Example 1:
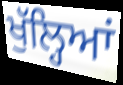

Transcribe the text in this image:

ਖੁੱਲ੍ਹਿਆਂ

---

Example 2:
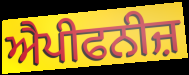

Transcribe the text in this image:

ਐਪੀਫਨੀਜ਼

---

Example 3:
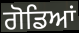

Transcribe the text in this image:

ਗੋਡਿਆਂ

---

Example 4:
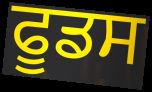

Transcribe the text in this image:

ਫੂਡਸ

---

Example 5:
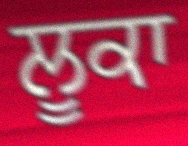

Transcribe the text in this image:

ਲੂਕਾ